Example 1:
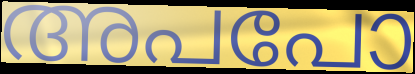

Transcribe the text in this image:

അപപോ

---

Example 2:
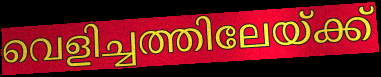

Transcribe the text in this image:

വെളിച്ചത്തിലേയ്ക്ക്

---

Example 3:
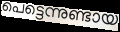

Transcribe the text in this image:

പെട്ടെന്നുണ്ടായ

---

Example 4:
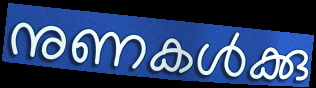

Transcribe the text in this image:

നുണകൾക്കു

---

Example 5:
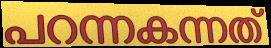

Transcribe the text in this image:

പറന്നകന്നത്